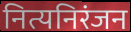
नित्यनिरंजन